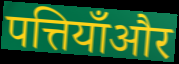
पत्तियाँऔर